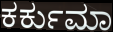
ಕರ್ಕುಮಾ